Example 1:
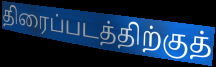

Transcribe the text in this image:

திரைப்படத்திற்குத்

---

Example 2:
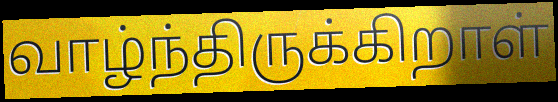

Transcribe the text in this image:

வாழ்ந்திருக்கிறாள்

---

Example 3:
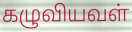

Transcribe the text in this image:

கழுவியவள்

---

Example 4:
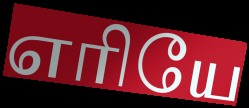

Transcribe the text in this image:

எரியே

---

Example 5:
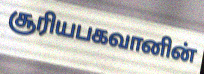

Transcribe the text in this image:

சூரியபகவானின்